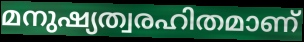
മനുഷ്യത്വരഹിതമാണ്